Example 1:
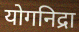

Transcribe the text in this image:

योगनिद्रा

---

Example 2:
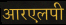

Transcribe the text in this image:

आरएलपी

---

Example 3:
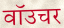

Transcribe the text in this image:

वॉउचर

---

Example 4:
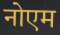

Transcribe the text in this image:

नोएम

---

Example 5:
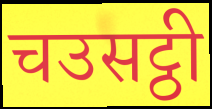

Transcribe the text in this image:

चउसट्ठी